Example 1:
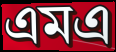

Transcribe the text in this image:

এমএ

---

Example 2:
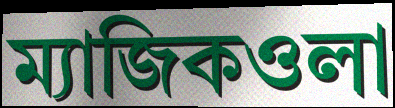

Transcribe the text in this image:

ম্যাজিকওলা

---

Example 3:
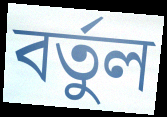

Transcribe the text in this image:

বর্তুল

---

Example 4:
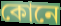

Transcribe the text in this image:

কোনে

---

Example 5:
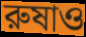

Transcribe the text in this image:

রুষাও